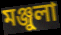
মঞ্জুলা